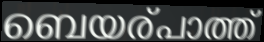
ബെയര്പാത്ത്